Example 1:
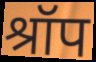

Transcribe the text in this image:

श्रॉप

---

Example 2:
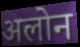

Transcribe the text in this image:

अलोन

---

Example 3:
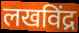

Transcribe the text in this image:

लखविंद्र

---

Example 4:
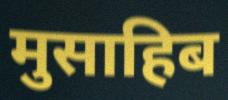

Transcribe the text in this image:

मुसाहिब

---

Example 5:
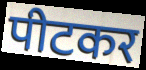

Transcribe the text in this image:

पीटकर